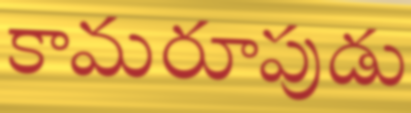
కామరూపుడు